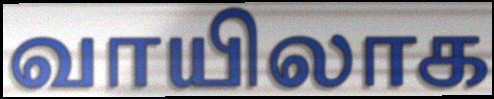
வாயிலாக